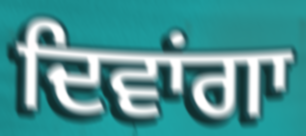
ਦਿਵਾਂਗਾ